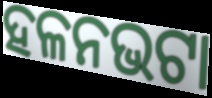
ହଳନଭଟା